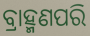
ବ୍ରାହ୍ମଣପରି